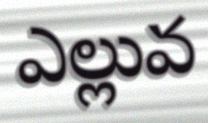
ఎల్లువ